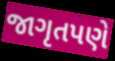
જાગૃતપણે